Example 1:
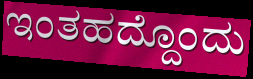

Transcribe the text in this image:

ಇಂತಹದ್ದೊಂದು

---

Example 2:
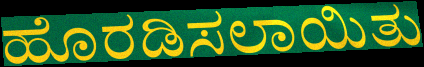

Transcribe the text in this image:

ಹೊರಡಿಸಲಾಯಿತು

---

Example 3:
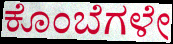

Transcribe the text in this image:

ಕೊಂಬೆಗಳೇ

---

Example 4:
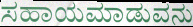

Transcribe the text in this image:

ಸಹಾಯಮಾಡುವನು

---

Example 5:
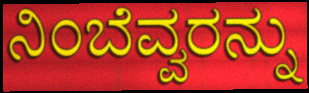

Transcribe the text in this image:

ನಿಂಬೆವ್ವರನ್ನು